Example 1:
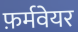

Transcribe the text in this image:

फ़र्मवेयर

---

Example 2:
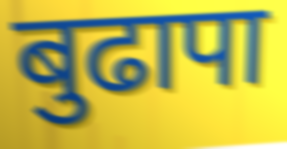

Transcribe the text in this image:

बुढापा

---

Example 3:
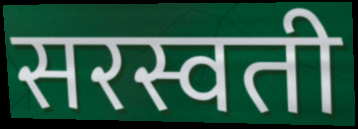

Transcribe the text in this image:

सरस्‍वती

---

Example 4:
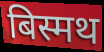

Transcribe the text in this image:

बिस्मथ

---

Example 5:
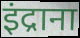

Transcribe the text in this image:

इंद्राना